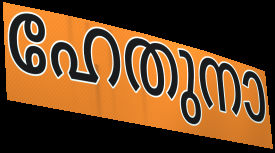
ഹേതുനാ